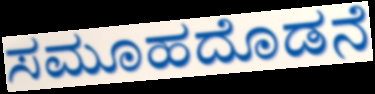
ಸಮೂಹದೊಡನೆ